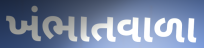
ખંભાતવાળા